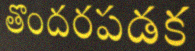
తొందరపడక